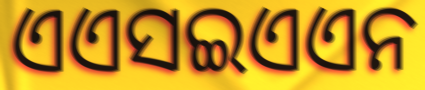
ଏଏସଇଏଏନ